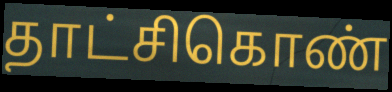
தாட்சிகொண்